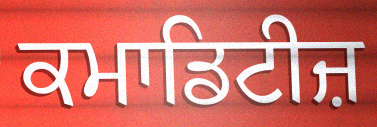
ਕਮਾਡਿਟੀਜ਼